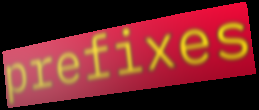
prefixes